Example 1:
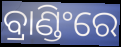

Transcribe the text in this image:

ବ୍ରାଣ୍ଡିଂରେ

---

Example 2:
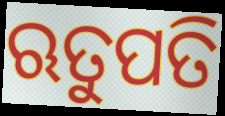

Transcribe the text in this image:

ଋତୁପତି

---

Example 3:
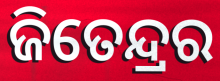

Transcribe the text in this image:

ଜିତେନ୍ଦ୍ରର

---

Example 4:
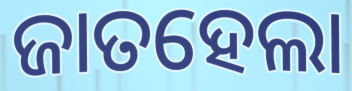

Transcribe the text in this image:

ଜାତହେଲା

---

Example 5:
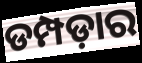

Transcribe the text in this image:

ଡମ୍ପଡ଼ାର